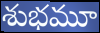
శుభమూ